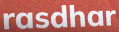
rasdhar